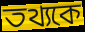
তথ্যকে